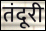
तंदूरी